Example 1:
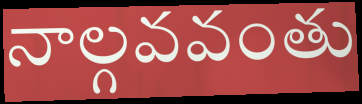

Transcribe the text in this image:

నాల్గవవంతు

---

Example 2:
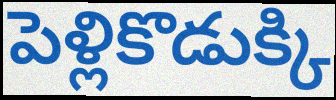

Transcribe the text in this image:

పెళ్లికొడుక్కి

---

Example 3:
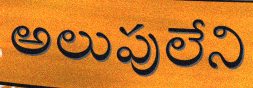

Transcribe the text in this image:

అలుపులేని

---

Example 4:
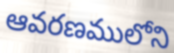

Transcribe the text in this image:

ఆవరణములోని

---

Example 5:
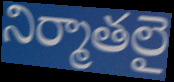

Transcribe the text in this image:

నిర్మాతలై